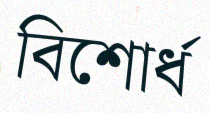
বিশোর্ধ